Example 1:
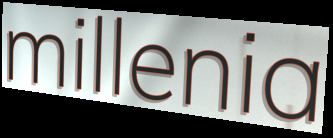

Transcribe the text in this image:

millenia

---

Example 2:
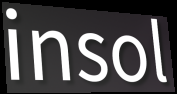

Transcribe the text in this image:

insol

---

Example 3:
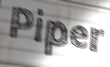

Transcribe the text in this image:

Piper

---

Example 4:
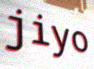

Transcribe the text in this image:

jiyo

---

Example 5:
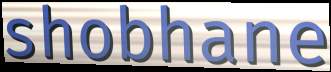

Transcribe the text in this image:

shobhane